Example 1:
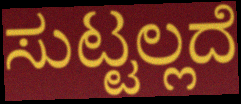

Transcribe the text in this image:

ಸುಟ್ಟಲ್ಲದೆ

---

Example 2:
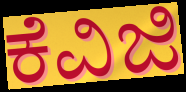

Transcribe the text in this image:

ಕೆವಿಜಿ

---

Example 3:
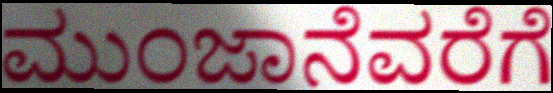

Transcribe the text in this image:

ಮುಂಜಾನೆವರೆಗೆ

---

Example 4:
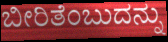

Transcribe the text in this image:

ಬೀರಿತೆಂಬುದನ್ನು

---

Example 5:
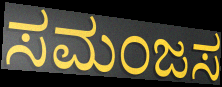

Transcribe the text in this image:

ಸಮಂಜಸ